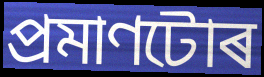
প্ৰমাণটোৰ